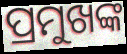
ପ୍ରମୁଖଙ୍କ